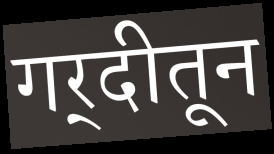
गर्दीतून